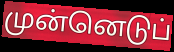
முன்னெடுப்